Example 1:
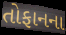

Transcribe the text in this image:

તોફાનના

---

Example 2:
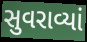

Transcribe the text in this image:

સુવરાવ્યાં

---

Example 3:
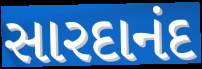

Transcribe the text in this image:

સારદાનંદ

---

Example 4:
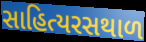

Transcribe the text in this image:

સાહિત્યરસથાળ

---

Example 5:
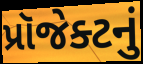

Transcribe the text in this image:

પ્રૉજેક્ટનું